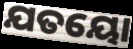
ଯତୟୋ